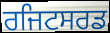
ਰਜਿਟਸਰਡ